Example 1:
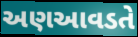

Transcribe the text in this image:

અણઆવડતે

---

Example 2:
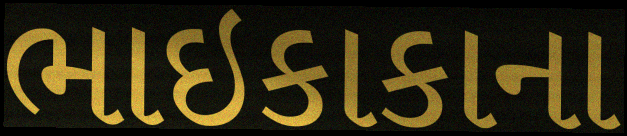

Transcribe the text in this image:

ભાઇકાકાના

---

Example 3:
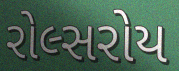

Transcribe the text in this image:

રોલ્સરોય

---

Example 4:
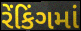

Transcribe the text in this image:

રેંકિંગમાં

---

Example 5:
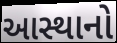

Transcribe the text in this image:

આસ્થાનો